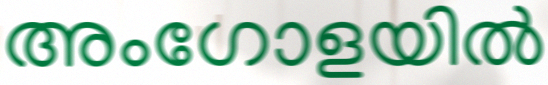
അംഗോളയിൽ